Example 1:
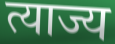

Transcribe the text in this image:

त्याज्य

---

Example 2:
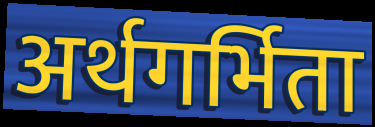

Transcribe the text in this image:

अर्थगर्भिता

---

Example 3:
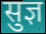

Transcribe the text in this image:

सुज्ञ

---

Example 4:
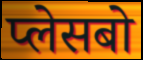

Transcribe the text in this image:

प्लेसबो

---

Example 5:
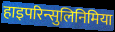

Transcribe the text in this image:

हाइपरिन्सुलिनिमिया